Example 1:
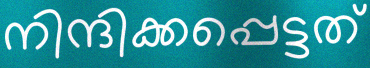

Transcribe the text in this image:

നിന്ദിക്കപ്പെട്ടത്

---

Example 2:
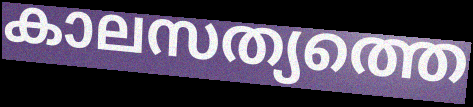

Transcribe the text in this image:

കാലസത്യത്തെ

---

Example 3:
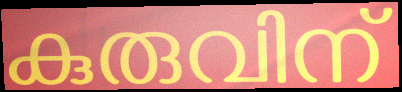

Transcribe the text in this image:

കുരുവിന്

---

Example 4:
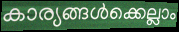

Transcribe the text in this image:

കാര്യങ്ങൾക്കെല്ലാം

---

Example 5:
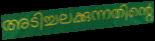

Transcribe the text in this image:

അടിച്ചലക്കുന്നതിന്റെ